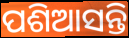
ପଶିଆସନ୍ତି